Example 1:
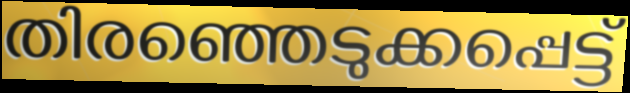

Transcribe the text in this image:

തിരഞ്ഞെടുക്കപ്പെട്ട്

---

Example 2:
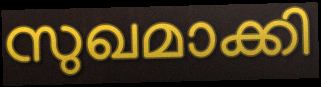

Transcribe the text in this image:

സുഖമാക്കി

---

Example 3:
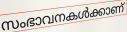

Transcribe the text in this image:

സംഭാവനകൾക്കാണ്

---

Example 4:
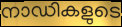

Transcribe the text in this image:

നാഡികളുടെ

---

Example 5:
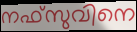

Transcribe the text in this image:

നഫ്സുവിനെ